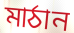
মাঠান